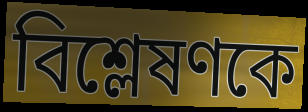
বিশ্লেষণকে